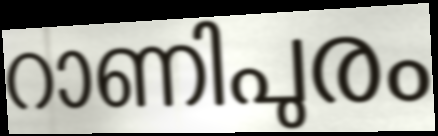
റാണിപുരം